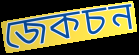
জেকচন